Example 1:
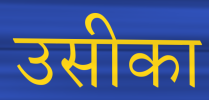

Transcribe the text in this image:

उसीका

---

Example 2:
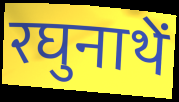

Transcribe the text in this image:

रघुनाथें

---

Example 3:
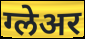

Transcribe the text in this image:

ग्लेअर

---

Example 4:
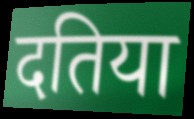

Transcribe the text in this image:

दतिया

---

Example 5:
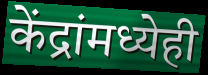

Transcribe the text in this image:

केंद्रांमध्येही